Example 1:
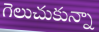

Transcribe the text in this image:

గెలుచుకున్నా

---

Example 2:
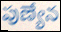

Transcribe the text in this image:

పుణ్యేన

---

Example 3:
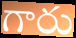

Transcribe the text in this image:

గారు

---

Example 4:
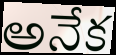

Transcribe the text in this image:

అనేక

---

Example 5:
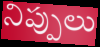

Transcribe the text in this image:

నిప్పులు